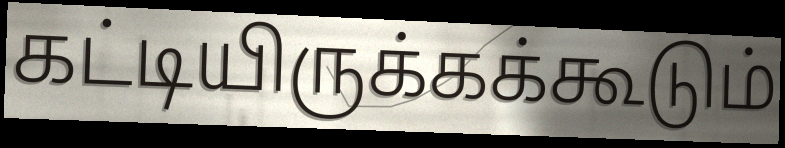
கட்டியிருக்கக்கூடும்